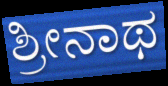
ಶ್ರೀನಾಥ